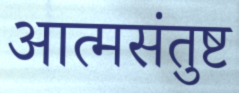
आत्मसंतुष्ट